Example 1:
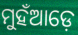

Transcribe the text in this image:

ମୁହଁଆଡ଼େ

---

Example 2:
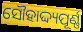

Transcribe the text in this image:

ସୌହାଦ୍ଦ୍ୟପୂର୍ଣ୍ଣ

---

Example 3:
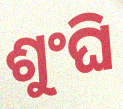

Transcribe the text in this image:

ଶୁଂଘି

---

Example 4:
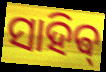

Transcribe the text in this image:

ସାହିଵ୍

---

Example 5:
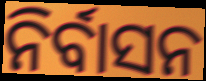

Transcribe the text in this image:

ନିର୍ବାସନ